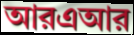
আরএআর